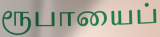
ரூபாயைப்